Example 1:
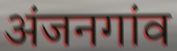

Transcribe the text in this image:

अंजनगांव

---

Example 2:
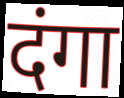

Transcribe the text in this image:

दंगा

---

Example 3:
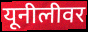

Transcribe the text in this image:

यूनीलीवर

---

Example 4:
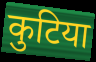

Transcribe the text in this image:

कुटिया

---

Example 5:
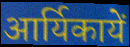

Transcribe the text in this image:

आर्यिकायें